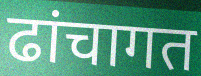
ढांचागत